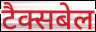
टैक्सबेल